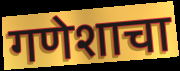
गणेशाचा